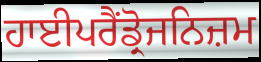
ਹਾਈਪਰੈਂਡ੍ਰੋਜਨਿਜ਼ਮ